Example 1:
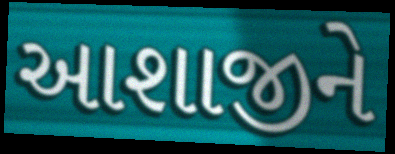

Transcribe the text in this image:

આશાજીને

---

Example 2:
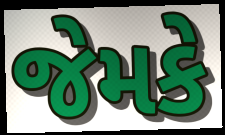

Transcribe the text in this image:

જેમકે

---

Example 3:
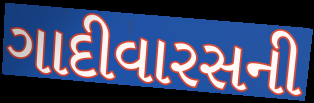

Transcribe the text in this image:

ગાદીવારસની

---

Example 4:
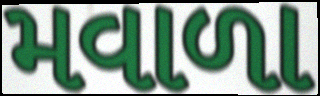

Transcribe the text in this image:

મવાળા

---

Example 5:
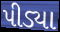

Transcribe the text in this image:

પીડ્યા